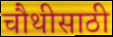
चौथीसाठी